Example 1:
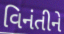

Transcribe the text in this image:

વિનંતીને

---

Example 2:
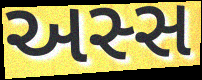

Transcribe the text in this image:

અસ્સ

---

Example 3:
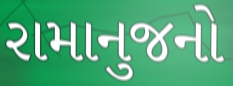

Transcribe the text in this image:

રામાનુજનો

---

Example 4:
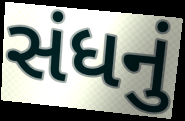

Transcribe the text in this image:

સંધનું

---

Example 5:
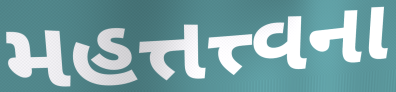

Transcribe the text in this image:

મહત્તત્ત્વના